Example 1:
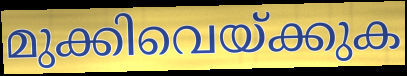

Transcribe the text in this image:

മുക്കിവെയ്ക്കുക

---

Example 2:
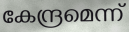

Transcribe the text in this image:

കേന്ദ്രമെന്ന്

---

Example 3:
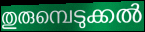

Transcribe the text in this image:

തുരുമ്പെടുക്കൽ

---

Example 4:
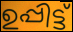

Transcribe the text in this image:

ഉപ്പിട്ട്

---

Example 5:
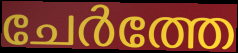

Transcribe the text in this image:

ചേർത്തേ